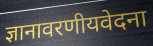
ज्ञानावरणीयवेदना